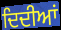
ਦਿਦੀਆਂ